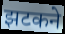
झटकने